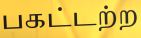
பகட்டற்ற